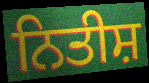
ਨਿਤੀਸ਼